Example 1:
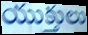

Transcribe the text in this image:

యుక్తులు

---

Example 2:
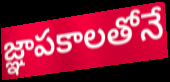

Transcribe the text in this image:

జ్ఞాపకాలతోనే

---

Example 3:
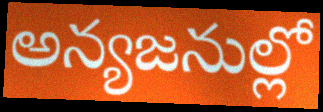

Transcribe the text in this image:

అన్యజనుల్లో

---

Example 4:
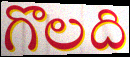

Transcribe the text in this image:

గొలది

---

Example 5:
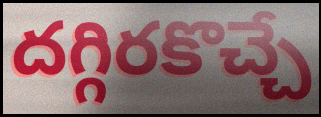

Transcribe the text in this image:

దగ్గిరకొచ్చే